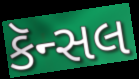
કૅન્સલ